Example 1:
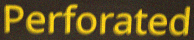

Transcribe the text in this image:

Perforated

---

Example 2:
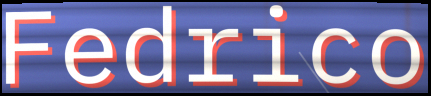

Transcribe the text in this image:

Fedrico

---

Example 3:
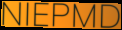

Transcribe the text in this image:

NIEPMD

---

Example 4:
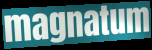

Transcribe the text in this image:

magnatum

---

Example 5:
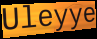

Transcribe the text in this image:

Uleyye